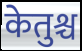
केतुश्च